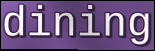
dining